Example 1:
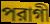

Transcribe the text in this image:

পরাগী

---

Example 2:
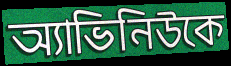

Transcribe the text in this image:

অ্যাভিনিউকে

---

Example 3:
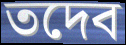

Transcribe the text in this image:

তদেব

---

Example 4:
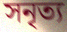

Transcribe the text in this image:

সনৃত্য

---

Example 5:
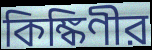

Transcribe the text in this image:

কিঙ্কিণীর